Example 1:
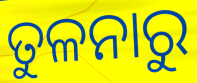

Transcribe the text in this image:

ତୁଳନାରୁ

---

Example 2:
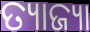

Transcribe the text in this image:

ତ୍ଯାଜ୍ୟା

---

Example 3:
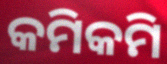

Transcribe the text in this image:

କମିକମି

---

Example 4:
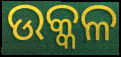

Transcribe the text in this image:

ଉକ୍କଳ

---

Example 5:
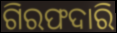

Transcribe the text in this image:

ଗିରଫଦାରି